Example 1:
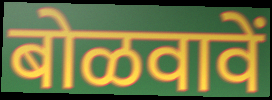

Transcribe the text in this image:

बोळवावें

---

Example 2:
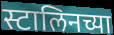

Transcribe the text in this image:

स्टालिनच्या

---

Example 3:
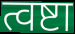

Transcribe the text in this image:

त्वष्टा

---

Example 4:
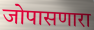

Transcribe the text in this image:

जोपासणारा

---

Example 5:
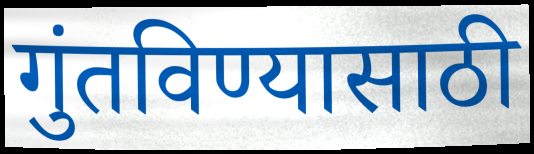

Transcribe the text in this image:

गुंतविण्यासाठी